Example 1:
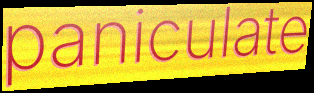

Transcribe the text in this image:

paniculate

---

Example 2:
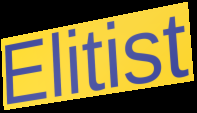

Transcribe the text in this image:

Elitist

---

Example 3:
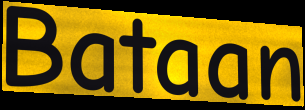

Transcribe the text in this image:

Bataan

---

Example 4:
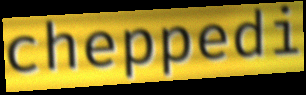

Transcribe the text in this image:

cheppedi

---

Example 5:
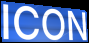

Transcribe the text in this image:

ICON